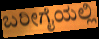
ಬರೀಗೈಯಲ್ಲಿ